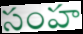
సంహ